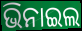
ଭିନାଇଲ